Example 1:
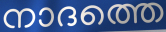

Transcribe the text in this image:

നാദത്തെ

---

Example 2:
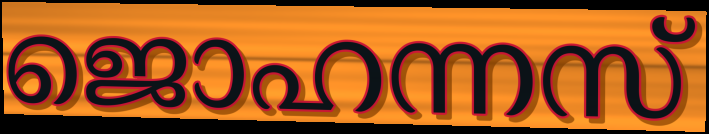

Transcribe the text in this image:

ജൊഹന്നസ്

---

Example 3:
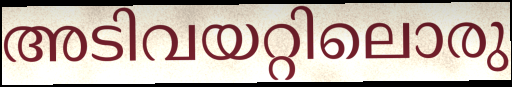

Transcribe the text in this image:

അടിവയറ്റിലൊരു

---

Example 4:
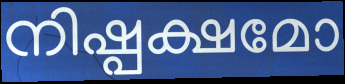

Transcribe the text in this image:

നിഷ്പക്ഷമോ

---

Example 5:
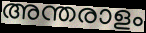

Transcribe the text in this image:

അന്തരാളം